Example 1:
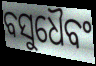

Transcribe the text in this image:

ବସୁଧୈବଂ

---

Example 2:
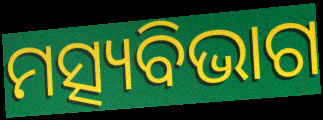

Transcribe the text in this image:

ମତ୍ସ୍ୟବିଭାଗ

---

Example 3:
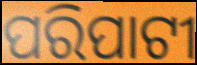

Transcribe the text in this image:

ପରିପାଟୀ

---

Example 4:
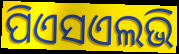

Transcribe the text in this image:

ପିଏସଏଲଭି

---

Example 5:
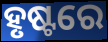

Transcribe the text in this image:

ହୃଷ୍ଟରେ